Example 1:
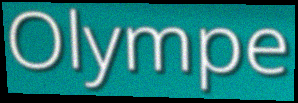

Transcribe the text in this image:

Olympe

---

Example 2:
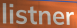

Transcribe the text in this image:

listner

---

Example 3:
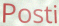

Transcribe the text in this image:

Posti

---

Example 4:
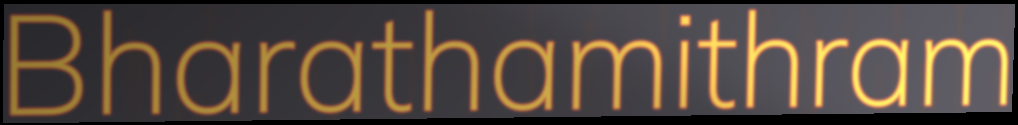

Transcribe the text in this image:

Bharathamithram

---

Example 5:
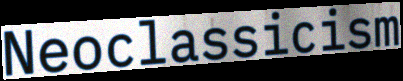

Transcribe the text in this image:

Neoclassicism